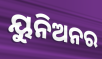
ୟୁନିଅନର